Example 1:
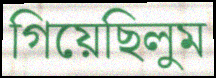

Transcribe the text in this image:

গিয়েছিলুম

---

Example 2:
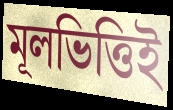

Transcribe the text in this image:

মূলভিত্তিই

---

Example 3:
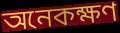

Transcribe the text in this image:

অনেকক্ষণ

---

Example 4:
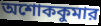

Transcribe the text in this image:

অশোককুমার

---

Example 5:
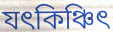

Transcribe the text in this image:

যৎকিঞ্চিৎ